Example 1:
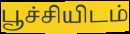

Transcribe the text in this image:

பூச்சியிடம்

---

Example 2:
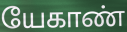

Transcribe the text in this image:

யேகாண்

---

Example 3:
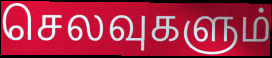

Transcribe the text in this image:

செலவுகளும்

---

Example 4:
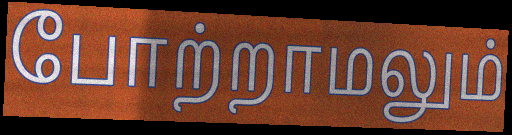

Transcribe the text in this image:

போற்றாமலும்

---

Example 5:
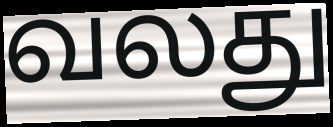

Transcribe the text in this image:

வலது